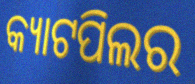
କ୍ୟାଟପିଲର